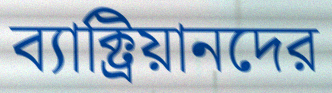
ব্যাক্ট্রিয়ানদের